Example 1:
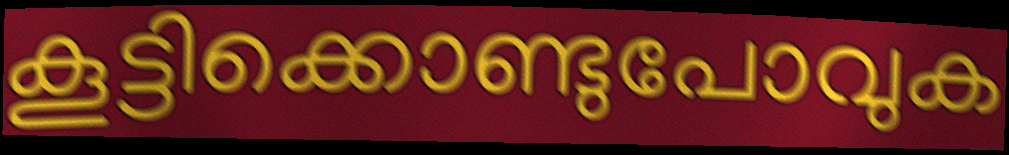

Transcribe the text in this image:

കൂട്ടിക്കൊണ്ടുപോവുക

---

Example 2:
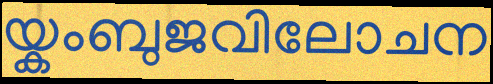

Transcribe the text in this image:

യ്കംബുജവിലോചന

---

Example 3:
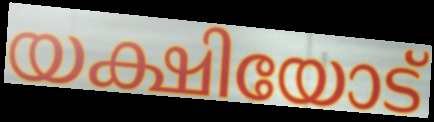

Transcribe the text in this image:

യക്ഷിയോട്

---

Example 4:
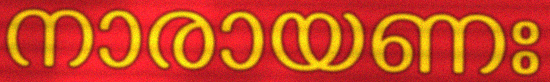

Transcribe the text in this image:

നാരായണഃ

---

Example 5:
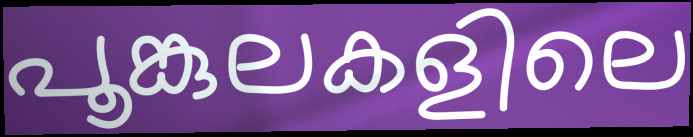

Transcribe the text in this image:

പൂങ്കുലകളിലെ